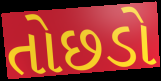
તોછડો